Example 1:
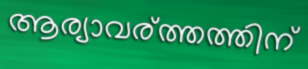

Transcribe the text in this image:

ആര്യാവര്ത്തത്തിന്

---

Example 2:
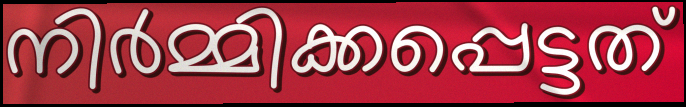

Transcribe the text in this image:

നിർമ്മിക്കപ്പെട്ടത്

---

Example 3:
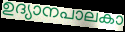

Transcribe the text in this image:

ഉദ്യാനപാലകാ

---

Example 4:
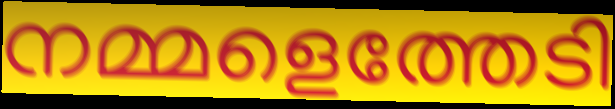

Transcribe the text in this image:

നമ്മളെത്തേടി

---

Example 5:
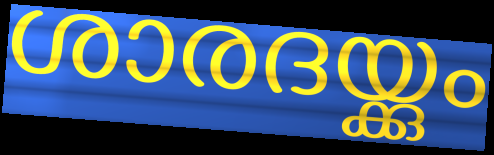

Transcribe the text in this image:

ശാരദയ്ക്കും